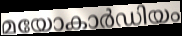
മയോകാർഡിയം